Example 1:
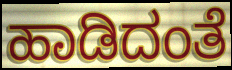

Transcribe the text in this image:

ಹಾಡಿದಂತೆ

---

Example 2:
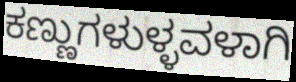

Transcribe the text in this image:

ಕಣ್ಣುಗಳುಳ್ಳವಳಾಗಿ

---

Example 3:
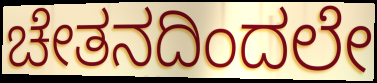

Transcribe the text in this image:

ಚೇತನದಿಂದಲೇ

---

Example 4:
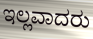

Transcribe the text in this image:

ಇಲ್ಲವಾದರು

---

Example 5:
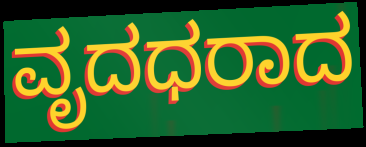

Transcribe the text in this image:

ವೃದಧರಾದ